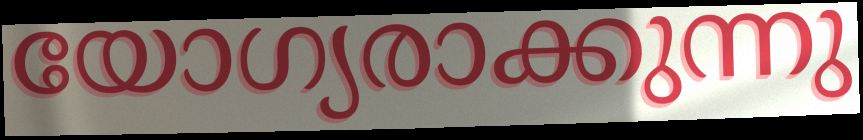
യോഗ്യരാക്കുന്നു